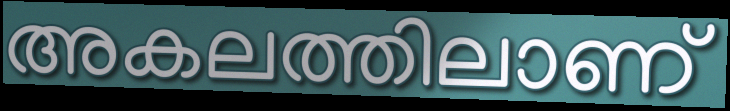
അകലത്തിലാണ്